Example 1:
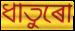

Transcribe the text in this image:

ধাতুৰো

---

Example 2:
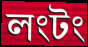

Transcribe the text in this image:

লংটং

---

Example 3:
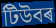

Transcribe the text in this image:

টিউবৰ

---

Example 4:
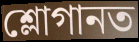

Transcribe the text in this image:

শ্লোগানত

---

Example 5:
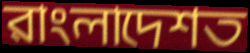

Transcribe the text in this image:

ৱাংলাদেশত